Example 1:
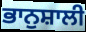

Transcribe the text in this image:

ਭਾਨੁਸ਼ਾਲੀ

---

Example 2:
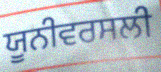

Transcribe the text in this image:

ਯੂਨੀਵਰਸਲੀ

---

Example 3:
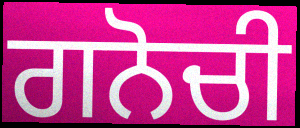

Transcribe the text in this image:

ਗਨੋਚੀ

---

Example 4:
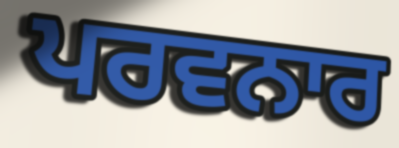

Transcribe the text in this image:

ਪਰਵਨਾਰ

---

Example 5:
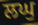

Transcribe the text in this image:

ਲਘੁ